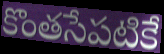
కొంతసేపటికే